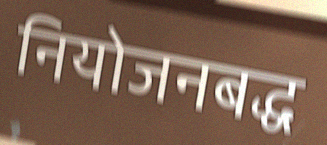
नियोजनबद्ध